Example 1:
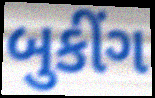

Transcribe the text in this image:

બુકીંગ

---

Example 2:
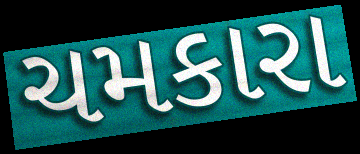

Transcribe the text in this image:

ચમકારા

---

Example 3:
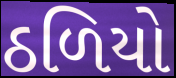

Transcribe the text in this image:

ઠળિયો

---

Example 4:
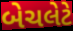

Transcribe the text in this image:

બેચલેટે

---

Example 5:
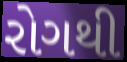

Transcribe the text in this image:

રોગથી